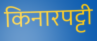
किनारपट्टी